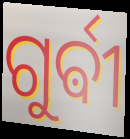
ଗୁର୍ଵୀ